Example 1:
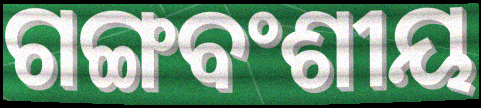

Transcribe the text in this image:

ଗଙ୍ଗବଂଶୀୟ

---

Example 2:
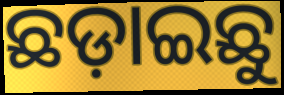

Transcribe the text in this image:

ଛଡ଼ାଇଛୁ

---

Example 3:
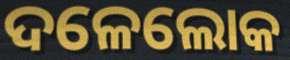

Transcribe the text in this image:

ଦଳେଲୋକ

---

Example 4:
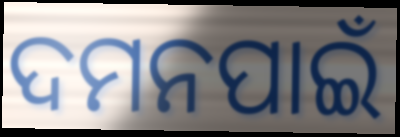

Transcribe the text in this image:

ଦମନପାଇଁ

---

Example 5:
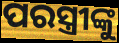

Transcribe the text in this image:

ପରସ୍ତ୍ରୀଙ୍କୁ